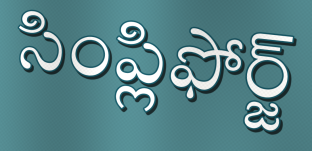
సింప్లిఫోర్జ్